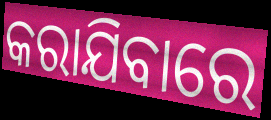
କରାଯିବାରେ